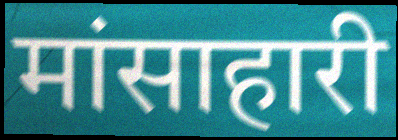
मांसाहारी